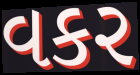
વકર